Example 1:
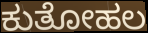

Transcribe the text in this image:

ಕುತೋಹಲ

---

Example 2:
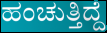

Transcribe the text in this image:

ಹಂಚುತ್ತಿದ್ದೆ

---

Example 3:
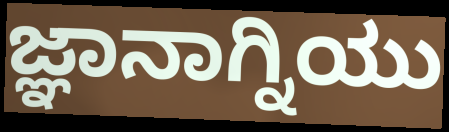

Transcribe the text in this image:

ಜ್ಞಾನಾಗ್ನಿಯು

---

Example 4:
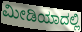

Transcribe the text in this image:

ಮೀಡಿಯಾದಲ್ಲಿ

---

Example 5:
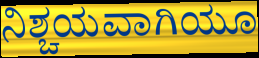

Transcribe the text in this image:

ನಿಶ್ಚಯವಾಗಿಯೂ